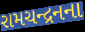
રામચન્દ્રનના